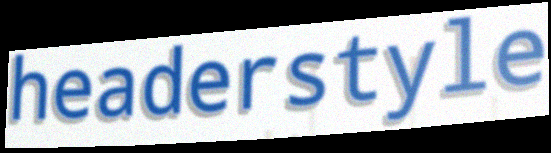
headerstyle